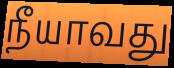
நீயாவது